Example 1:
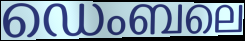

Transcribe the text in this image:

ഡെംബലെ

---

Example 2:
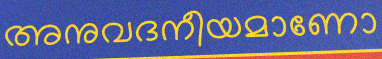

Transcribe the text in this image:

അനുവദനീയമാണോ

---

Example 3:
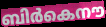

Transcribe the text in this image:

ബിർകെനൗ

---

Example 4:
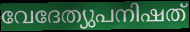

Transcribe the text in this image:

വേദേത്യുപനിഷത്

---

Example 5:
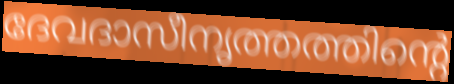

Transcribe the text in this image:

ദേവദാസീനൃത്തത്തിന്റെ